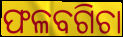
ଫଳବଗିଚା